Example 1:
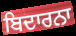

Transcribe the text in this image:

ਬਿਦਾਰਨਾ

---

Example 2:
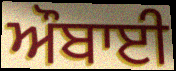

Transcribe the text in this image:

ਔਬਾਈ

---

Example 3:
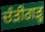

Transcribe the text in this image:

ਚੰੜੀਗੜ੍ਹ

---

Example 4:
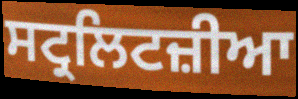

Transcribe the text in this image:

ਸਟ੍ਰਲਿਟਜ਼ੀਆ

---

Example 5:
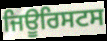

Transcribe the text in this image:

ਜਿਊਰਿਸਟਸ